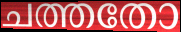
ചത്തതോ